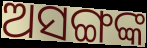
ଅସଙ୍ଗଙ୍କ